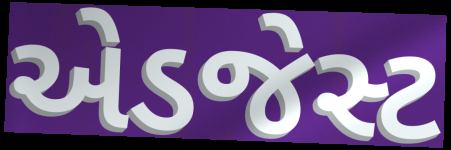
એડજેસ્ટ